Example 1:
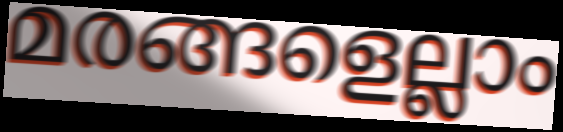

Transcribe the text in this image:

മരങ്ങളെല്ലാം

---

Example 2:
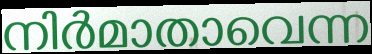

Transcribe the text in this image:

നിർമാതാവെന്ന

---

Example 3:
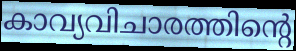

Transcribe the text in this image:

കാവ്യവിചാരത്തിന്റെ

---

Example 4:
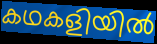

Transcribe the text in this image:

കഥകളിയിൽ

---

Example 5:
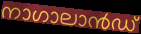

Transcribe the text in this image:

നാഗാലാൻഡ്